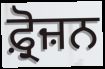
ਫ਼੍ਰੋਜ਼ਨ